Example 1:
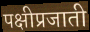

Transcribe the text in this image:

पक्षीप्रजाती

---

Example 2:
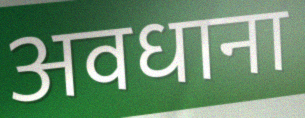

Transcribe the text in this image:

अवधाना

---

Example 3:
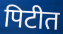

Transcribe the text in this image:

पिटीत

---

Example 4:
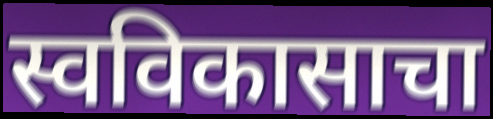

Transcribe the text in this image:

स्वविकासाचा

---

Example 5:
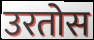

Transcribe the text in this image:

उरतोस